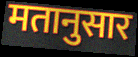
मतानुसार